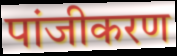
पांजीकरण